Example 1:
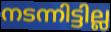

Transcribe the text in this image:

നടന്നിട്ടില്ല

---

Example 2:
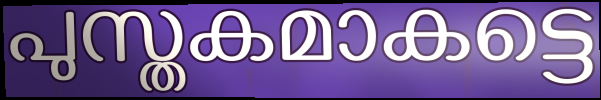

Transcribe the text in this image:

പുസ്തകമാകട്ടെ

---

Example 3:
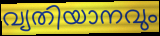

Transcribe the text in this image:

വ്യതിയാനവും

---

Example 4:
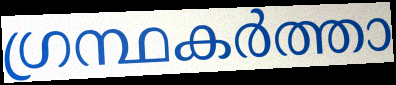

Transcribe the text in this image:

ഗ്രന്ഥകർത്താ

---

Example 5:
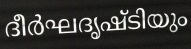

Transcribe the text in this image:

ദീർഘദൃഷ്ടിയും